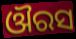
ଔରସ